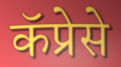
कॅप्रेसे